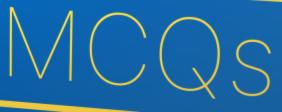
MCQs